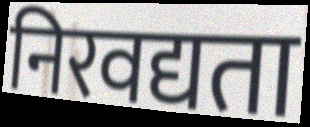
निरवद्यता